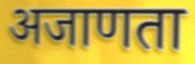
अजाणता